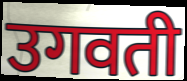
उगवती